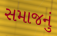
સમાજનું